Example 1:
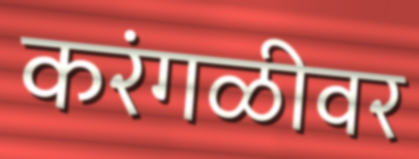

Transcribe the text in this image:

करंगळीवर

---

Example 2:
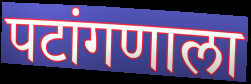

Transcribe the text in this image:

पटांगणाला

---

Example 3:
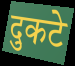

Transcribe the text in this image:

दुकटे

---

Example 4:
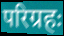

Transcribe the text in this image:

परिग्रहः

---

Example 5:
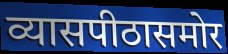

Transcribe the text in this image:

व्यासपीठासमोर